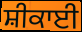
ਸ਼ੀਕਾਈ